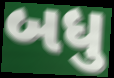
બધુ